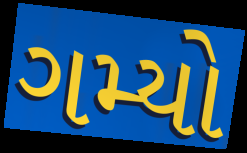
ગમ્યો